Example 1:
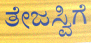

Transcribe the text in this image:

ತೇಜಸ್ವಿಗೆ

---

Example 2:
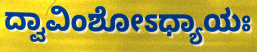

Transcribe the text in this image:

ದ್ವಾವಿಂಶೋಽಧ್ಯಾಯಃ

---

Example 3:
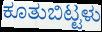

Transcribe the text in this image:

ಕೂತುಬಿಟ್ಟಳು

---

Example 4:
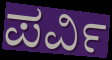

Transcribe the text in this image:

ಪರ್ವಿ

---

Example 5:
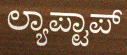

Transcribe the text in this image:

ಲ್ಯಾಪ್ಟಾಪ್